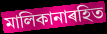
মালিকানাৰহিত